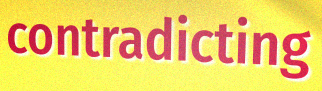
contradicting